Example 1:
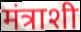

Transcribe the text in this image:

मंत्राशी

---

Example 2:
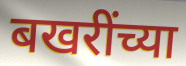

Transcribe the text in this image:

बखरींच्या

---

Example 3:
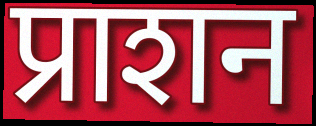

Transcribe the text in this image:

प्राशन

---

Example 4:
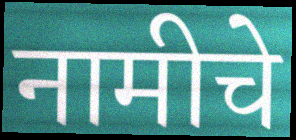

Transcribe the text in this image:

नामीचे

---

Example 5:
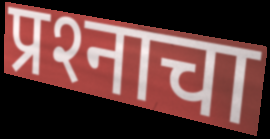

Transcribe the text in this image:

प्रश्नाचा